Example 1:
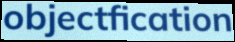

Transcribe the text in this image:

objectfication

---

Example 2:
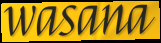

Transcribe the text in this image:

wasana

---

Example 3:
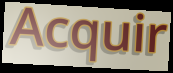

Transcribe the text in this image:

Acquir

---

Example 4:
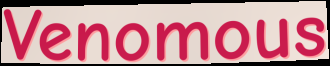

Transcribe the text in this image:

Venomous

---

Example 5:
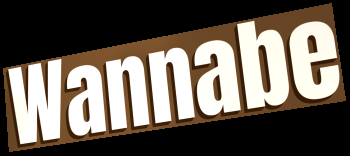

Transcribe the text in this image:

Wannabe